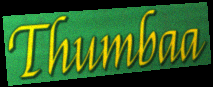
Thumbaa